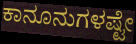
ಕಾನೂನುಗಳಷ್ಟೇ